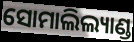
ସୋମାଲିଲ୍ୟାଣ୍ଡ